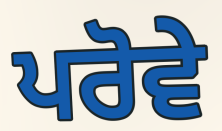
ਪਰੋਵੇ